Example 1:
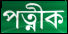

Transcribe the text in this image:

পত্নীক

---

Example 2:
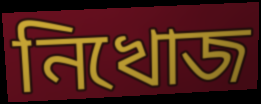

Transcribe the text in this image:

নিখোজ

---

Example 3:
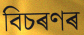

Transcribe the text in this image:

বিচৰণৰ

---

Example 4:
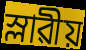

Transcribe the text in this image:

স্লাৱীয়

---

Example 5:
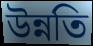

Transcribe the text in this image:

উন্নতি